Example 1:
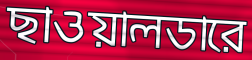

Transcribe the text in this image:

ছাওয়ালডারে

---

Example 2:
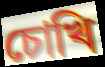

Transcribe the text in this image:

চোখি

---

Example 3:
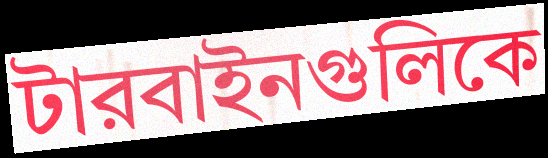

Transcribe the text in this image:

টারবাইনগুলিকে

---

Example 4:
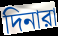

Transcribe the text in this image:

দিনারা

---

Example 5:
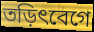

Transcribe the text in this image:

তড়িৎবেগে